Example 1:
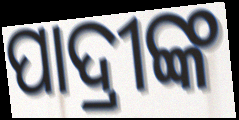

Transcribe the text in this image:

ପାଦ୍ରୀଙ୍କ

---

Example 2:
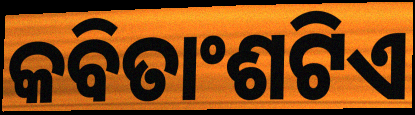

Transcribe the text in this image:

କବିତାଂଶଟିଏ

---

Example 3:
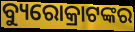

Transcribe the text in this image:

ବ୍ୟୁରୋକ୍ରାଟଙ୍କର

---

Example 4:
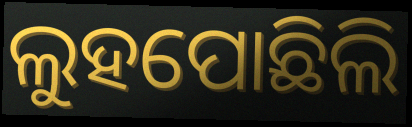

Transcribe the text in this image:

ଲୁହପୋଛିଲି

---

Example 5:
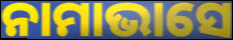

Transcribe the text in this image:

ନାମାଭାସେ